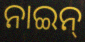
ନାଇନ୍